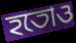
হতোও